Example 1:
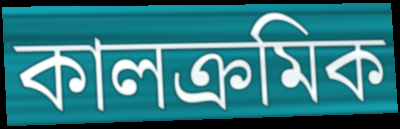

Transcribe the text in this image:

কালক্ৰমিক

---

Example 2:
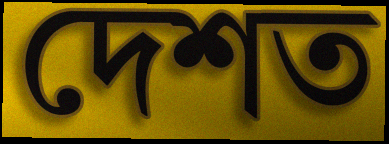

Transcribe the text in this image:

দেশত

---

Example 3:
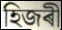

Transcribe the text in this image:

হিজৰী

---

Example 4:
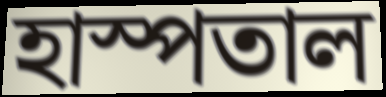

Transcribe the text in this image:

হাস্পতাল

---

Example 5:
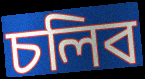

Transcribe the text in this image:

চলিব